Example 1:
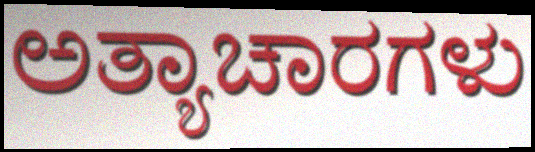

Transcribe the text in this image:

ಅತ್ಯಾಚಾರಗಳು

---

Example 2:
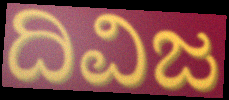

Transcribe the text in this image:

ದಿವಿಜ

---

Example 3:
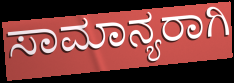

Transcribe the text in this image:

ಸಾಮಾನ್ಯರಾಗಿ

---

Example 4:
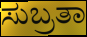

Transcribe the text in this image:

ಸುಬ್ರತಾ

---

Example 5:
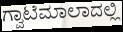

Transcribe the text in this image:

ಗ್ವಾಟೆಮಾಲಾದಲ್ಲಿ